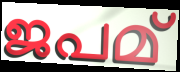
ജപമ്